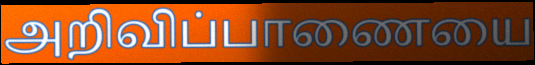
அறிவிப்பாணையை